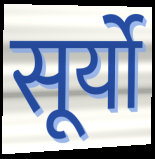
सूर्यो